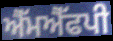
ਐੱਮਐੱਫਪੀ